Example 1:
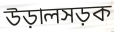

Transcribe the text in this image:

উড়ালসড়ক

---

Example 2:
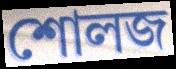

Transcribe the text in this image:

শোলজ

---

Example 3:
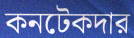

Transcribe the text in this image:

কনটেকদার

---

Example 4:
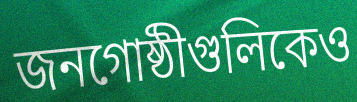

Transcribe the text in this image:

জনগোষ্ঠীগুলিকেও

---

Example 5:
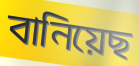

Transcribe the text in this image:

বানিয়েছ